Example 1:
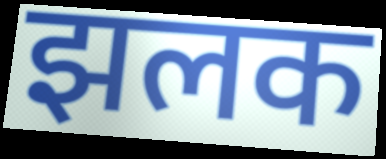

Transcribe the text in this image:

झलक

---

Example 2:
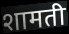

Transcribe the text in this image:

शामती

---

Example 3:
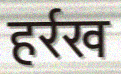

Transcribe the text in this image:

हर्रख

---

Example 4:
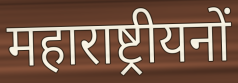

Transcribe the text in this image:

महाराष्ट्रीयनों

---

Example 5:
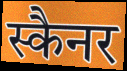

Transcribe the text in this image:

स्कैनर